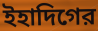
ইহাদিগের